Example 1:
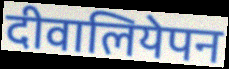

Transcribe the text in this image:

दीवालियेपन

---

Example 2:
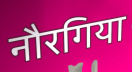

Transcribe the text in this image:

नौरगिया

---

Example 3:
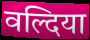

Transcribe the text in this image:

वल्दिया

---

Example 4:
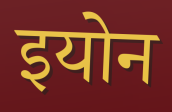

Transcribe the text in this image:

इयोन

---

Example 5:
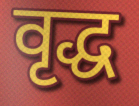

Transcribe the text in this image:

वृद्ध